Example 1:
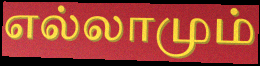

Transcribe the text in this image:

எல்லாமும்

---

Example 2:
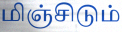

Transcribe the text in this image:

மிஞ்சிடும்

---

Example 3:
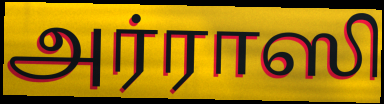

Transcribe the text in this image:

அர்ராஸி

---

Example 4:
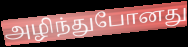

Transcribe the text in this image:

அழிந்துபோனது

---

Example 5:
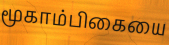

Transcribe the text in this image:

மூகாம்பிகையை